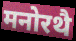
मनोरथै